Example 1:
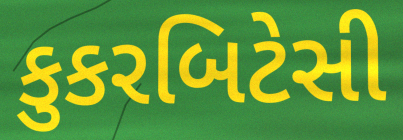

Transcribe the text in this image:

કુકરબિટેસી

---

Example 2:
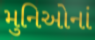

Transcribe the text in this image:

મુનિઓનાં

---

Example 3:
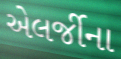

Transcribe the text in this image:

એલર્જીના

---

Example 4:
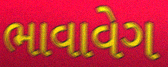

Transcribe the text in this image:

ભાવાવેગ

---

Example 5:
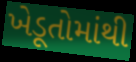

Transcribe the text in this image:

ખેડૂતોમાંથી